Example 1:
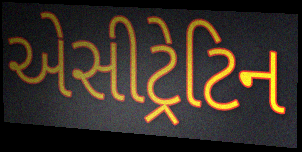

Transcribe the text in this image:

એસીટ્રેટિન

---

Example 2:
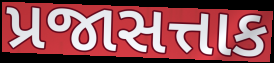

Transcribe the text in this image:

પ્રજાસત્તાક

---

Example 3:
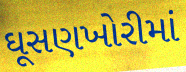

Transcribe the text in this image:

ઘૂસણખોરીમાં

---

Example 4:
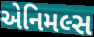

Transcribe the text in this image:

એનિમલ્સ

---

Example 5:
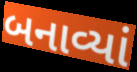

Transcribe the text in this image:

બનાવ્યાં